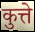
कुत्ते